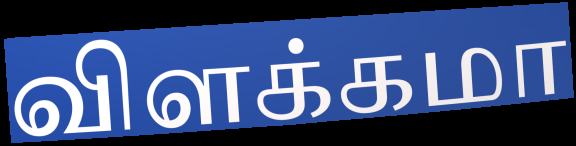
விளக்கமா